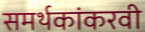
समर्थकांकरवी